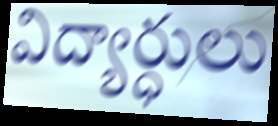
విద్యార్ధులు